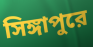
সিঙ্গাপুরে